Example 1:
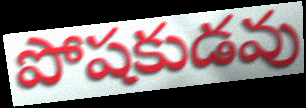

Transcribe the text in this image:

పోషకుడవు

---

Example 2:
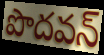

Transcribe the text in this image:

పొదవన్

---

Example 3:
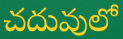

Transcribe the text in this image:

చదువులో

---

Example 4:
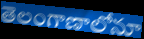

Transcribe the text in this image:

తెలంగాణాలోనూ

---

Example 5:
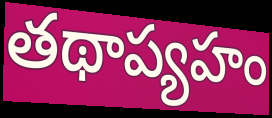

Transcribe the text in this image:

తథాప్యహం